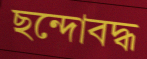
ছন্দোবদ্ধ